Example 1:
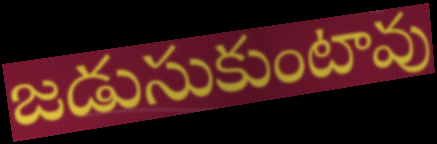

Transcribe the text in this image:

జడుసుకుంటావు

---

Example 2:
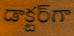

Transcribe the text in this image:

డాక్టర్‌గా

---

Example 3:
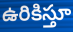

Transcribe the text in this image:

ఉరికిస్తూ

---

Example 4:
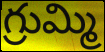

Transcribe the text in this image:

గ్రుమ్మి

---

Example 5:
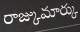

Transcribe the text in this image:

రాజ్కుమార్కు